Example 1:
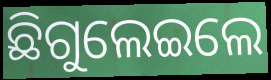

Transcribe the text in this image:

ଛିଗୁଲେଇଲେ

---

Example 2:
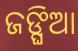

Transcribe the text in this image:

ଜଙ୍ଘିଆ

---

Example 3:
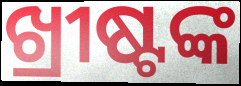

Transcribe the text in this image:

ଖ୍ରୀଷ୍ଟଙ୍କ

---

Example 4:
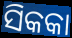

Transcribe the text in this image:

ସିକକା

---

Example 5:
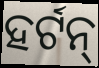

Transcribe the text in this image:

ହର୍ଟନ୍